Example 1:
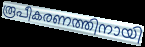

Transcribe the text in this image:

രൂപീകരണത്തിനായി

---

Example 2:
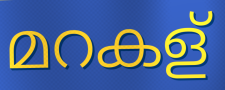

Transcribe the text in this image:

മറകള്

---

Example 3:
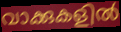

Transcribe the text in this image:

വാക്കുകളിൽ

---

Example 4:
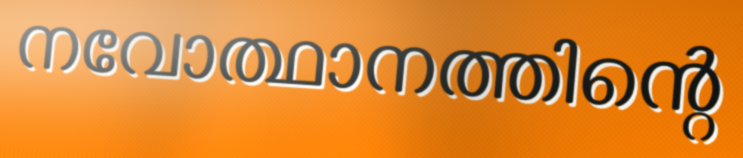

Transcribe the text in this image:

നവോത്ഥാനത്തിന്റെ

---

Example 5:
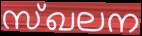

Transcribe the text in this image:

സ്ഖലന